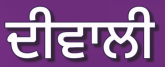
ਦੀਵਾਲੀ